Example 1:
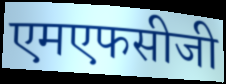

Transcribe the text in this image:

एमएफसीजी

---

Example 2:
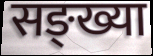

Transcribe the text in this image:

सङ्ख्या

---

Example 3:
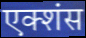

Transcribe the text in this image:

एक्शंस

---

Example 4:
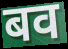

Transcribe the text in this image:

बव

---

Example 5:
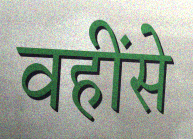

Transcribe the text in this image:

वहींसे